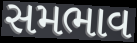
સમભાવ